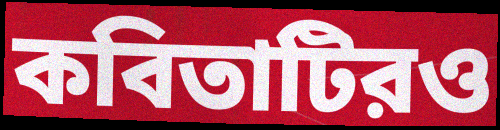
কবিতাটিরও